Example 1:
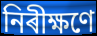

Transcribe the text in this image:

নিৰীক্ষণে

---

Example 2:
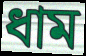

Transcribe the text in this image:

ধাম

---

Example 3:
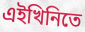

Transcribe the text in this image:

এইখিনিতে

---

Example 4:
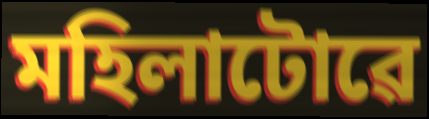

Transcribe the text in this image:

মহিলাটোৱে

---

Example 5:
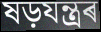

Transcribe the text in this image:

ষড়যন্ত্ৰৰ